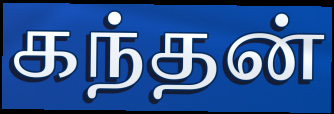
கந்தன்